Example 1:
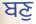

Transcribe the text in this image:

ਬਣੁ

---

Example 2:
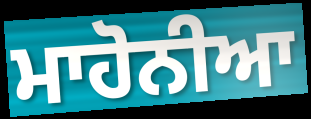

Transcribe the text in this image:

ਮਾਹੋਨੀਆ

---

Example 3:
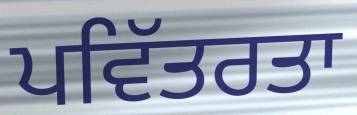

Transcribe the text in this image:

ਪਵਿੱਤਰਤਾ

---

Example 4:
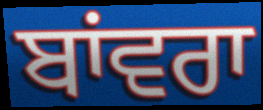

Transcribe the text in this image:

ਬਾਂਵਰਾ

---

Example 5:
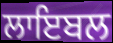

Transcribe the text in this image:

ਲਾਇਬਲ